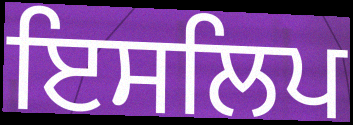
ਇਸਲਿਪ